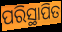
ପରିସ୍ଥାପିତ